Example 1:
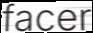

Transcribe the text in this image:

facer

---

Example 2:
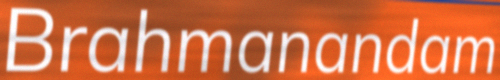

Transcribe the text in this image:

Brahmanandam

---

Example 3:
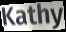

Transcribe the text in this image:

Kathy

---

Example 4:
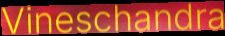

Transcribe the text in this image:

Vineschandra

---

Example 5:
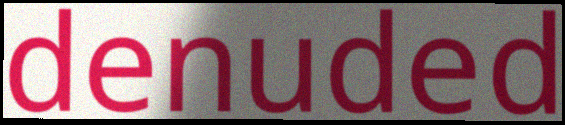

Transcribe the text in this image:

denuded